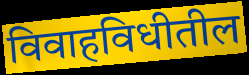
विवाहविधीतील